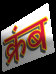
क्रंब